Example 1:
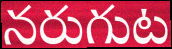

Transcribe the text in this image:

నరుగుట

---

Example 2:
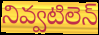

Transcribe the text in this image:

నివ్వటిలెన్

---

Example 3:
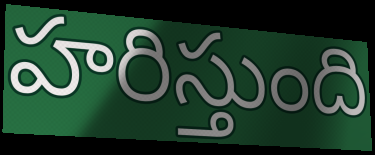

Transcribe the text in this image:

హరిస్తుంది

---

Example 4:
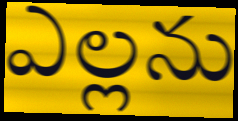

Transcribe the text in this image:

ఎల్లను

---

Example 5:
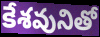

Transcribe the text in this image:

కేశవునితో